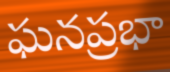
ఘనప్రభా